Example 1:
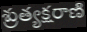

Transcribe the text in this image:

శ్రుత్యక్షరాణి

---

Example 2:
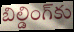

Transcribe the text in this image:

బిల్డింగ్‌కు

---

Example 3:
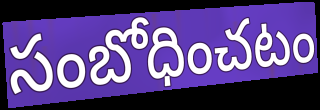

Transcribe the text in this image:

సంబోధించటం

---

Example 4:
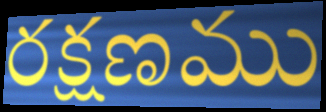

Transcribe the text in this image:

రక్షణము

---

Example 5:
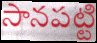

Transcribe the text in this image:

సానపట్టి